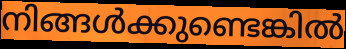
നിങ്ങൾക്കുണ്ടെങ്കിൽ